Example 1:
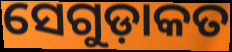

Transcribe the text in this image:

ସେଗୁଡ଼ାକତ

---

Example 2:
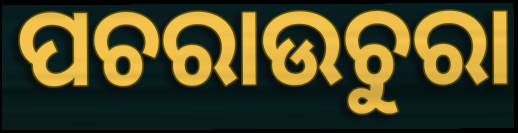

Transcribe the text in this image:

ପଚରାଉଚୁରା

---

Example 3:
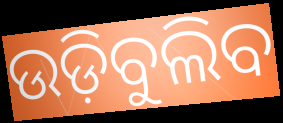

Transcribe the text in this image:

ଉଡ଼ିବୁଲିବ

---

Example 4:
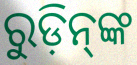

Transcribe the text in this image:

ରୁଡ଼ିନ୍‌ଙ୍କ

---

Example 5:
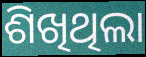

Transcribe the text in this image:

ଶିଖିଥିଲା